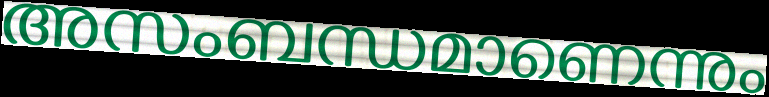
അസംബന്ധമാണെന്നും